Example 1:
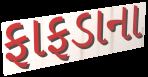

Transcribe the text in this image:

ફાફડાના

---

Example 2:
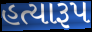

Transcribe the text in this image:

હત્યારૂપ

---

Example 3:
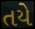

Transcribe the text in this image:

તયે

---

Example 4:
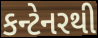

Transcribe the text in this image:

કન્ટેનરથી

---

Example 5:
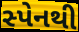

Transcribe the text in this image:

સ્પેનથી